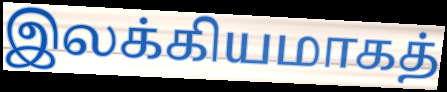
இலக்கியமாகத்